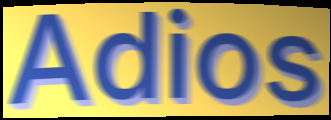
Adios